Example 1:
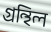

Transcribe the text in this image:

গ্ৰন্থিল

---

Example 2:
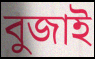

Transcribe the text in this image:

বুজাই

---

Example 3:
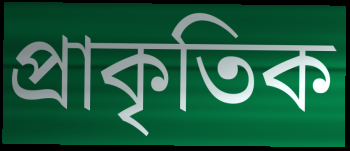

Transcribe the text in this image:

প্ৰাকৃতিক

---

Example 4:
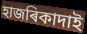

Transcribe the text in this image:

হাজৰিকাদাই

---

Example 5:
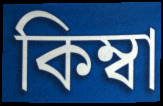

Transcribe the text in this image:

কিম্বা